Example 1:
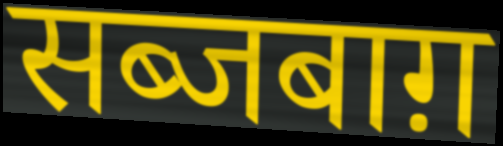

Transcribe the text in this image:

सब्जबाग़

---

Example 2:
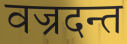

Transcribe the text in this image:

वज्रदन्त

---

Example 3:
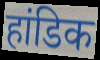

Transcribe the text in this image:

हांडिक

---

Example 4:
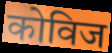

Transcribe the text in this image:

कोविज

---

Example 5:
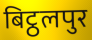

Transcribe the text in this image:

बिट्ठलपुर